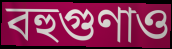
বহুগুণাও